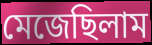
মেজেছিলাম